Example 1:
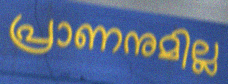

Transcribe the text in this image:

പ്രാണനുമില്ല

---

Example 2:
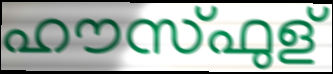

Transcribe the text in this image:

ഹൗസ്ഫുള്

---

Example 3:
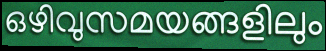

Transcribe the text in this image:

ഒഴിവുസമയങ്ങളിലും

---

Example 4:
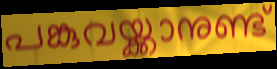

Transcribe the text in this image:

പങ്കുവയ്ക്കാനുണ്ട്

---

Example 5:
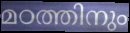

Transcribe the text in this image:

മഠത്തിനും